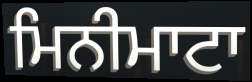
ਮਿਨੀਮਾਟਾ